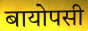
बायोपसी